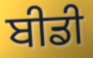
ਬੀਡੀ